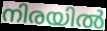
നിരയിൽ